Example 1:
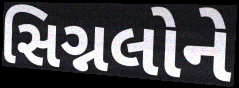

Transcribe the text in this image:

સિગ્નલોને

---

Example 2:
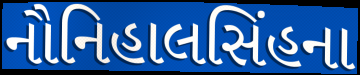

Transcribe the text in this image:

નૌનિહાલસિંહના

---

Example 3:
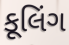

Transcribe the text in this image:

કૂલિંગ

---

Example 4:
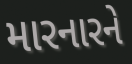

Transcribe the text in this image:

મારનારને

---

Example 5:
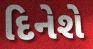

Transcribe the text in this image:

દિનેશે